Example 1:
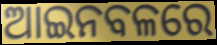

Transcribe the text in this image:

ଆଇନବଳରେ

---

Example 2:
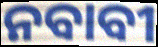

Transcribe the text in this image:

ନବାବୀ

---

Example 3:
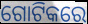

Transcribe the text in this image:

ଗୋଟିକରେ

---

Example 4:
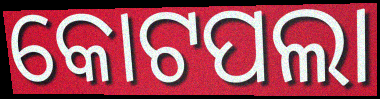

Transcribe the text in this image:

କୋଟପଲା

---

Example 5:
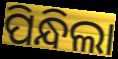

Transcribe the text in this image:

ପିନ୍ଧିଲା